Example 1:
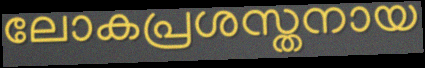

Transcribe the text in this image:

ലോകപ്രശസ്തനായ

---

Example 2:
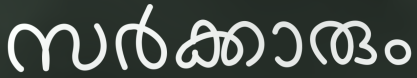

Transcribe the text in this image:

സർക്കാരും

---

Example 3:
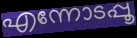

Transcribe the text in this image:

എന്നോടപ്പൂ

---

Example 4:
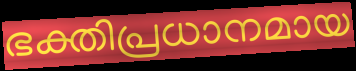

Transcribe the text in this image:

ഭക്തിപ്രധാനമായ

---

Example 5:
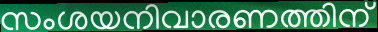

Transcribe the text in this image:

സംശയനിവാരണത്തിന്